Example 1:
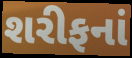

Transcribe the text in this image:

શરીફનાં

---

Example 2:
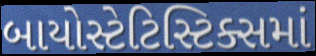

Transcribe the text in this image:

બાયોસ્ટેટિસ્ટિક્સમાં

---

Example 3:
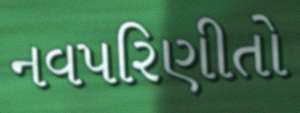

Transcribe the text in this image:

નવપરિણીતો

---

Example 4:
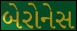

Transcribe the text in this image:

બેરોનેસ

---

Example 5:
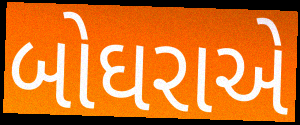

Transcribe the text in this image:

બોઘરાએ